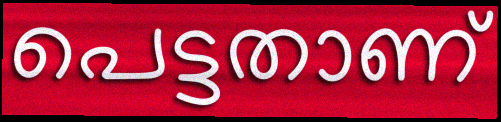
പെട്ടതാണ്